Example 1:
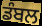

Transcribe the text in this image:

ਡੰਬਲ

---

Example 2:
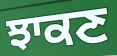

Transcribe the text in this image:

ਝਾਕਣ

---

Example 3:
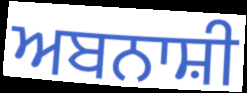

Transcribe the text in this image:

ਅਬਨਾਸ਼ੀ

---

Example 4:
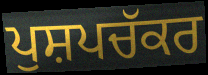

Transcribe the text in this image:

ਪੁਸ਼ਪਚੱਕਰ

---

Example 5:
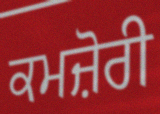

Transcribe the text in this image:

ਕਮਜ਼ੋਰੀ